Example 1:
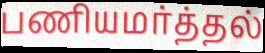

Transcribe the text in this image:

பணியமர்த்தல்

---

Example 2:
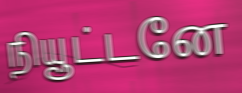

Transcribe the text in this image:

நியூட்டனே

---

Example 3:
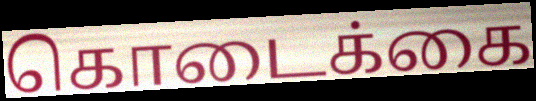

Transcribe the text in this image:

கொடைக்கை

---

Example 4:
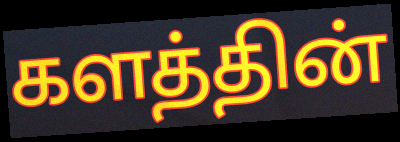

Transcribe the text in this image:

களத்தின்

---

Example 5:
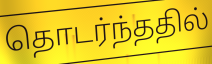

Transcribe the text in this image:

தொடர்ந்ததில்